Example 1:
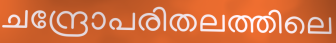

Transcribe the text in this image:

ചന്ദ്രോപരിതലത്തിലെ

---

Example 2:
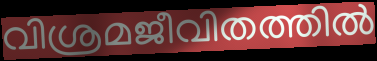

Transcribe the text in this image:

വിശ്രമജീവിതത്തിൽ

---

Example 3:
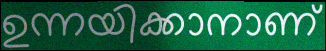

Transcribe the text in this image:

ഉന്നയിക്കാനാണ്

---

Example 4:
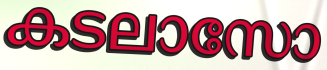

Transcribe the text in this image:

കടലാസോ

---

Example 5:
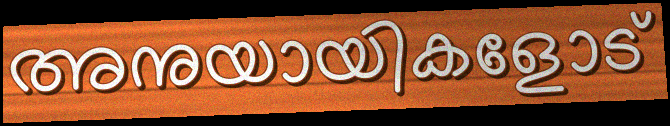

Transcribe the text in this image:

അനുയായികളോട്